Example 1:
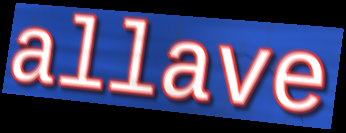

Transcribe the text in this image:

allave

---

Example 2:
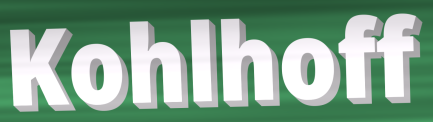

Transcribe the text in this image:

Kohlhoff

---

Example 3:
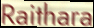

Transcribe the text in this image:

Raithara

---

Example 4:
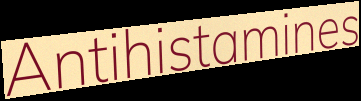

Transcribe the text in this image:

Antihistamines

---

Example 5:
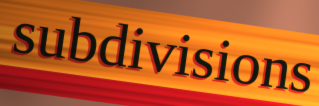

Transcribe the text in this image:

subdivisions